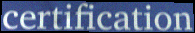
certification